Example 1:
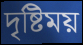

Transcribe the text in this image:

দৃষ্টিময়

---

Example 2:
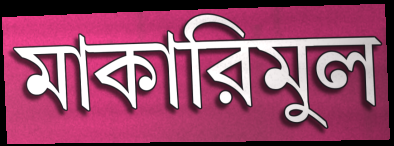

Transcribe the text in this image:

মাকারিমুল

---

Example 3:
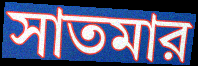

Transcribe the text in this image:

সাতমার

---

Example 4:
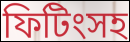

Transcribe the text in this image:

ফিটিংসহ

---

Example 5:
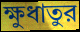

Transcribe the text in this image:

ক্ষুধাতুর